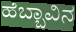
ಹೆಬ್ಬಾವಿನ